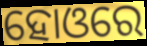
ହୋଓରେ